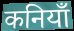
कनियाँ